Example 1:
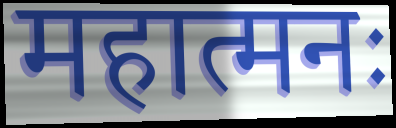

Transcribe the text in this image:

महात्मनः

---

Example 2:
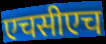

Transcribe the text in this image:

एचसीएच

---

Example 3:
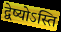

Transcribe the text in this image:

द्वेष्योऽस्ति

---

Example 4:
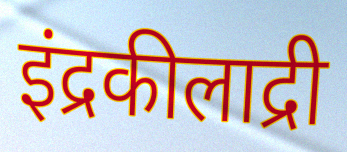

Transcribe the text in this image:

इंद्रकीलाद्री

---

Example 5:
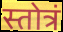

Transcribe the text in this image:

स्तोत्रं